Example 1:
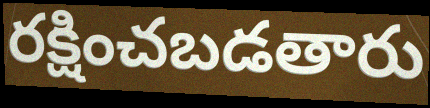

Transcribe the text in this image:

రక్షించబడతారు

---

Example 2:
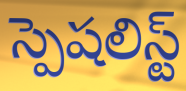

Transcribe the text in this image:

స్పెషలిస్ట్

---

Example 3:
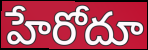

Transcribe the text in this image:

హేరోదూ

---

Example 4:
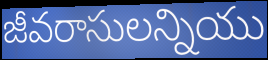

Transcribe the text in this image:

జీవరాసులన్నియు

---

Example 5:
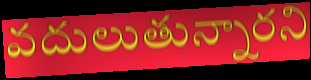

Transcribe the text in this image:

వదులుతున్నారని